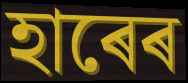
হাৰেৰ